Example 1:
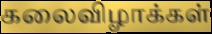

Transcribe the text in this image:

கலைவிழாக்கள்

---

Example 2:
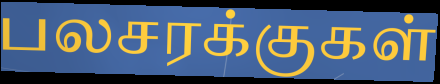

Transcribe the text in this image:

பலசரக்குகள்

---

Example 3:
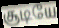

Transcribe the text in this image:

சூடியே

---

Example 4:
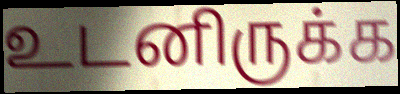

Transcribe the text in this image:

உடனிருக்க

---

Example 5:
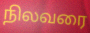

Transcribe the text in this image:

நிலவரை